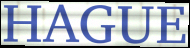
HAGUE